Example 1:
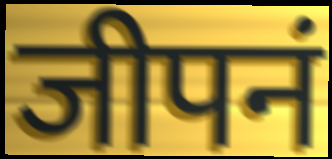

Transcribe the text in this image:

जीपनं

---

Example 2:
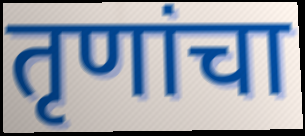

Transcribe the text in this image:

तृणांचा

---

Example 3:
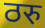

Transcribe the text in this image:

ठरु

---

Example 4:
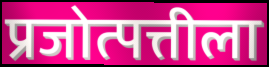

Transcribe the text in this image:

प्रजोत्पत्तीला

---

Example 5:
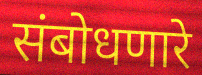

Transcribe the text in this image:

संबोधणारे